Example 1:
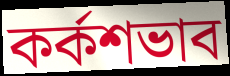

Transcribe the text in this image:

কর্কশভাব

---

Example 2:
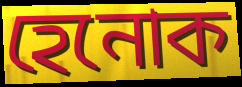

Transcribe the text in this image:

হেনোক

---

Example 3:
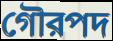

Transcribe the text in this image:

গৌরপদ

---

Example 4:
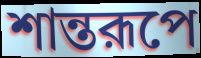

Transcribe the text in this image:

শান্তরূপে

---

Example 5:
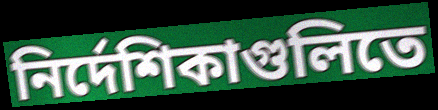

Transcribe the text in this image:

নির্দেশিকাগুলিতে